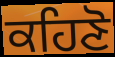
ਕਹਿਣੋ